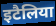
इटैलिया